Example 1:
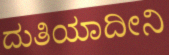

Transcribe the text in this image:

ದುತಿಯಾದೀನಿ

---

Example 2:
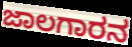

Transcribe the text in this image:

ಜಾಲಗಾರನ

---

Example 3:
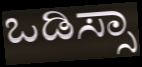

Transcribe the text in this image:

ಒಡಿಸ್ಸಾ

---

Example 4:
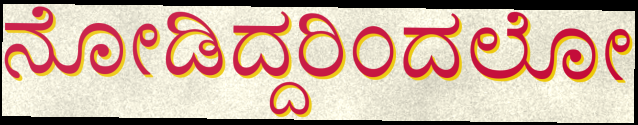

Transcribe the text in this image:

ನೋಡಿದ್ದರಿಂದಲೋ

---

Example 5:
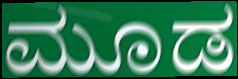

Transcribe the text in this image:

ಮೂಡ